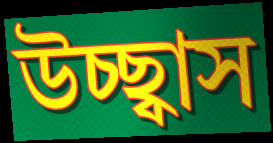
উচ্ছ্বাস